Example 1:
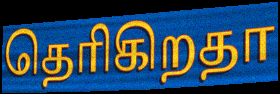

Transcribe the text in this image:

தெரிகிறதா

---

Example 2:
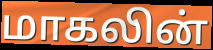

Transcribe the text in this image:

மாகலின்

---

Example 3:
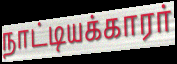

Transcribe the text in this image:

நாட்டியக்காரர்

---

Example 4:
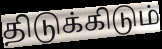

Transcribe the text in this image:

திடுக்கிடும்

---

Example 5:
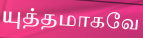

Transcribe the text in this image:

யுத்தமாகவே